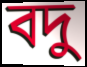
বদু